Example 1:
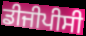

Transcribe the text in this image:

ਡੀਜੀਪੀਸੀ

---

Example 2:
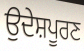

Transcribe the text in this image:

ਉਦੇਸ਼ਪੂਰਣ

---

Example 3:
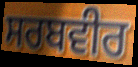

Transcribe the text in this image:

ਸਰਬਵੀਰ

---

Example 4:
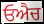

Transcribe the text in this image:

ਓਐਚ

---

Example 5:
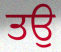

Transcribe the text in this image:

ਤਉ